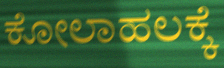
ಕೋಲಾಹಲಕ್ಕೆ